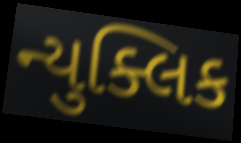
ન્યુક્લિક